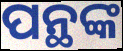
ପନ୍ଥଙ୍କ